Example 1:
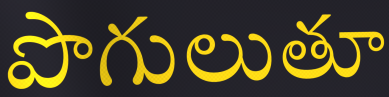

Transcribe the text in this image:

పొగులుతూ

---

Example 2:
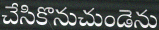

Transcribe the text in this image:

చేసికొనుచుండెను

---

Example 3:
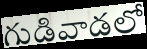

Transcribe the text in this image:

గుడివాడలో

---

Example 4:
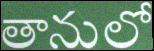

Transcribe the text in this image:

తానులో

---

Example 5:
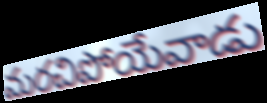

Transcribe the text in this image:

మరచిపోయేవాడు